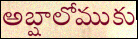
అబ్షాలోముకు